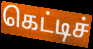
கெட்டிச்